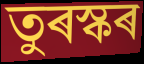
তুৰস্কৰ